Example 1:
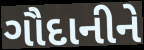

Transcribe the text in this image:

ગૌદાનીને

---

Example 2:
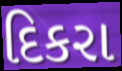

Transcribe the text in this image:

દિકરા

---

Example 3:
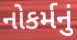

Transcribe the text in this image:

નોકર્મનું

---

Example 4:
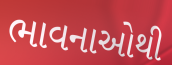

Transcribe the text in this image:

ભાવનાઓથી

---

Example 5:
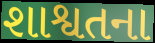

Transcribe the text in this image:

શાશ્વતના